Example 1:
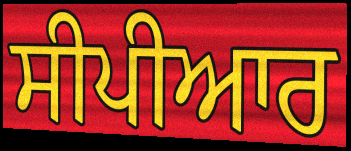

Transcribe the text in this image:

ਸੀਪੀਆਰ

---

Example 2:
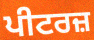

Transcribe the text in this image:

ਪੀਟਰਜ਼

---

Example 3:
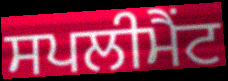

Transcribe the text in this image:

ਸਪਲੀਮੈਂਟ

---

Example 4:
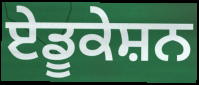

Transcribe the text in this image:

ਏਡੂਕੇਸ਼ਨ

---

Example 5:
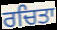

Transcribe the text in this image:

ਰਚਿਤਾ